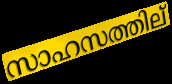
സാഹസത്തില്